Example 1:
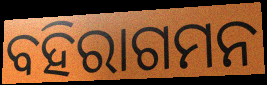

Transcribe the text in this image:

ବହିରାଗମନ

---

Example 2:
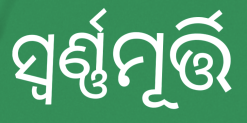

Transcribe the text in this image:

ସ୍ଵର୍ଣ୍ଣମୂର୍ତ୍ତି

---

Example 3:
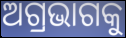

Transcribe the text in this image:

ଅଗ୍ରଭାଗକୁ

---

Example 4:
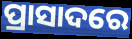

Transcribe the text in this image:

ପ୍ରାସାଦରେ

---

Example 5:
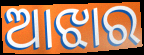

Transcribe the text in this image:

ଆଝାର